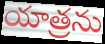
యాత్రను